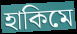
হাকিমে